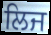
ਲਿਜ